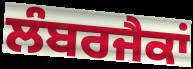
ਲੰਬਰਜੈਕਾਂ